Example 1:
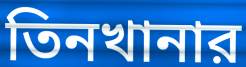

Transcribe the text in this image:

তিনখানার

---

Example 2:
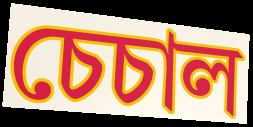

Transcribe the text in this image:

চেচাল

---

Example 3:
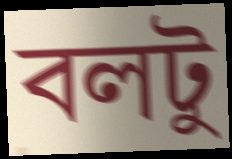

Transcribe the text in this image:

বলটু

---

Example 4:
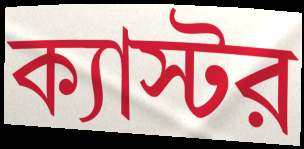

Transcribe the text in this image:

ক্যাস্টর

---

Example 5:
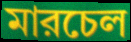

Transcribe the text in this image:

মারচেল